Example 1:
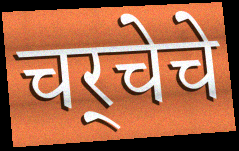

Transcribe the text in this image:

चर्चेचे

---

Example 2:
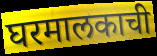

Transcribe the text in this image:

घरमालकाची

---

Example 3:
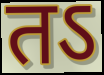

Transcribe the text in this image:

तऽ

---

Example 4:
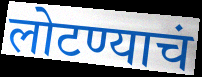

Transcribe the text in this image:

लोटण्याचं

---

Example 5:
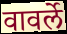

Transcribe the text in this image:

वावर्ले